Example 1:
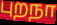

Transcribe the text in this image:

புறநா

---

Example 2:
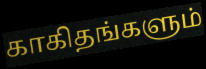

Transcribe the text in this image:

காகிதங்களும்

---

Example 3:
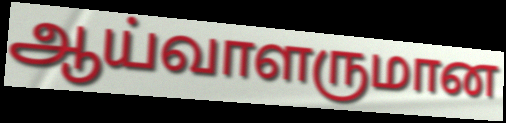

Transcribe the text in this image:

ஆய்வாளருமான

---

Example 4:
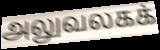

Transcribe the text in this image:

அலுவலகக்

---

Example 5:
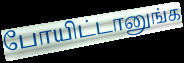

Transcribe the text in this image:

போயிட்டானுங்க